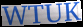
WTUK